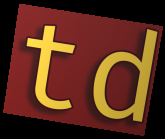
td